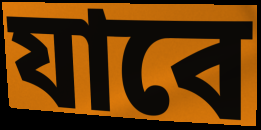
যাবে